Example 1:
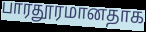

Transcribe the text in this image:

பாரதூரமானதாக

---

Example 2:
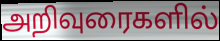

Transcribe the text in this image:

அறிவுரைகளில்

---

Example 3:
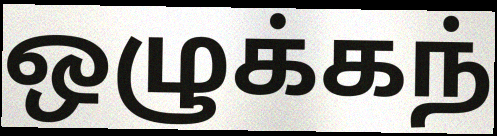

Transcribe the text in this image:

ஒழுக்கந்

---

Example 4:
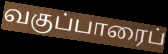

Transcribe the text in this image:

வகுப்பாரைப்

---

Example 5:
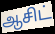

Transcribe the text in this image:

ஆசிட்